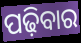
ପଢ଼ିବାର